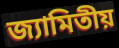
জ্যামিতীয়